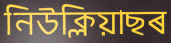
নিউক্লিয়াছৰ